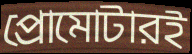
প্রোমোটারই